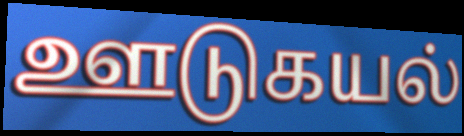
ஊடுகயல்